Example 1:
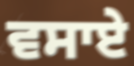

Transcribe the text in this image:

ਵਸਾਏ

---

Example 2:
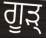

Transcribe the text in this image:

ਗੂੜ੍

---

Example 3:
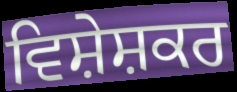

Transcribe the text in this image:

ਵਿਸ਼ੇਸ਼ਕਰ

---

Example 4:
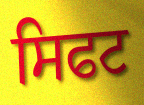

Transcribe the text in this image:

ਸਿਫਟ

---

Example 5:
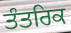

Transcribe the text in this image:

ਤੰਤਰਿਕ